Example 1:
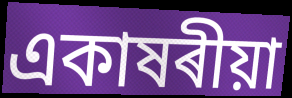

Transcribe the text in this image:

একাষৰীয়া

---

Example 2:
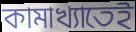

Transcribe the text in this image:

কামাখ্যাতেই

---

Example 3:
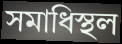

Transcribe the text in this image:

সমাধিস্থল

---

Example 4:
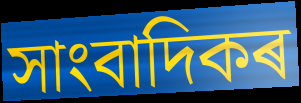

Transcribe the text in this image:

সাংবাদিকৰ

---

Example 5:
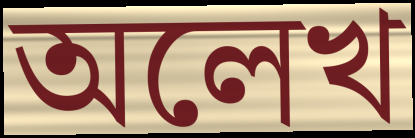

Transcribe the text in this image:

অলেখ